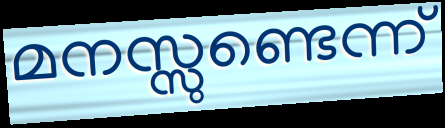
മനസ്സുണ്ടെന്ന്